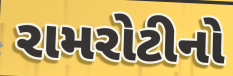
રામરોટીનો